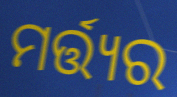
ମର୍ତ୍ତ୍ୟର